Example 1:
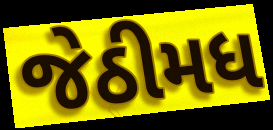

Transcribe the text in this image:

જેઠીમધ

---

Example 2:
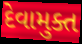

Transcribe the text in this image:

દેવામુક્ત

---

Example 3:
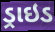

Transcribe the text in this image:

ડ્રાઇડ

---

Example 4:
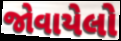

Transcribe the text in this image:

જોવાયેલો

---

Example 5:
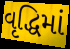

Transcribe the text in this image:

વૃદ્ધિમાં